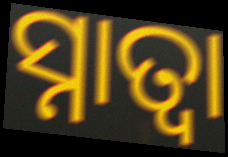
ସ୍ନାତ୍ବା